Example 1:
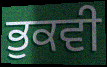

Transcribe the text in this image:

ਭੁਕਵੀ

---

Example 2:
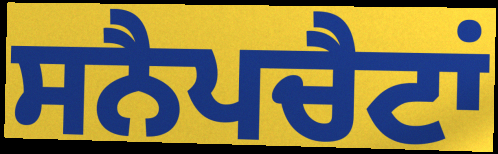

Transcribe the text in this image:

ਸਨੈਪਚੈਟਾਂ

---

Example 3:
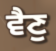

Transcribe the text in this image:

ਵੈਣੁ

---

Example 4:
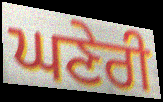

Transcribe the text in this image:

ਘਣੇਰੀ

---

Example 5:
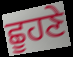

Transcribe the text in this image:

ਛੂਹਣੇ